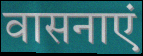
वासनाएं